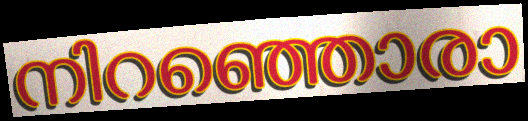
നിറഞ്ഞൊരാ